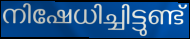
നിഷേധിച്ചിട്ടുണ്ട്